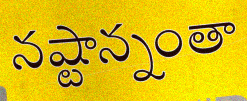
నష్టాన్నంతా